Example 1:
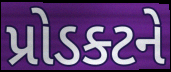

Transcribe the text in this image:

પ્રોડક્ટને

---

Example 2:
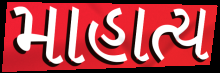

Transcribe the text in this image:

માહાત્ય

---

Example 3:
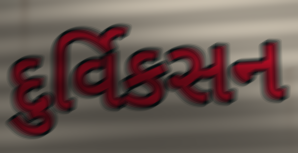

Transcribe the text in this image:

દુર્વિકસન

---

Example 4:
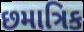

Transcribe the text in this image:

છમાત્રિક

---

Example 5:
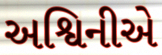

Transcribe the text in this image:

અશ્વિનીએ